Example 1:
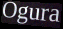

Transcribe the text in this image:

Ogura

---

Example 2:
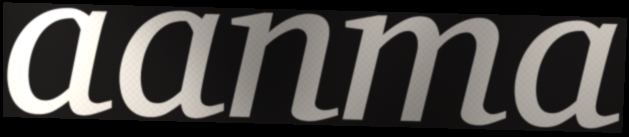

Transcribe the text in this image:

aanma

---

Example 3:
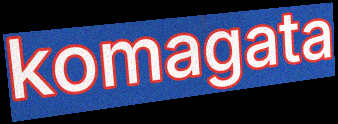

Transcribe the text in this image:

komagata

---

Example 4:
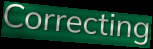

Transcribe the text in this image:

Correcting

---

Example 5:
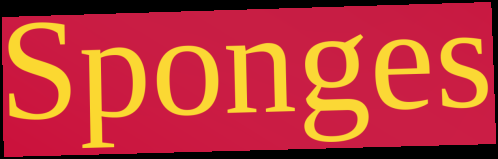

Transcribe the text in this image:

Sponges